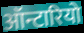
ऑन्टारियो